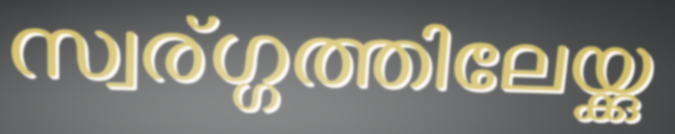
സ്വര്ഗ്ഗത്തിലേയ്ക്കു